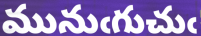
మునుఁగుచుఁ